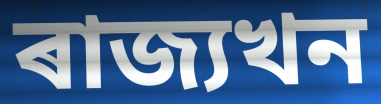
ৰাজ্যখন